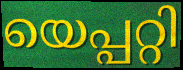
യെപ്പറ്റി